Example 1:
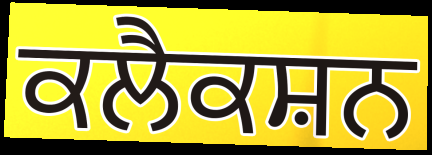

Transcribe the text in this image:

ਕਲੈਕਸ਼ਨ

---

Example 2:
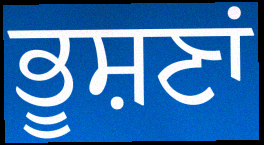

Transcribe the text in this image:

ਭੂਸ਼ਣਾਂ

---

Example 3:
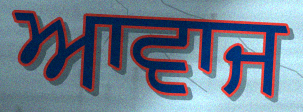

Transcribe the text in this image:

ਆਵਾਜ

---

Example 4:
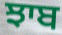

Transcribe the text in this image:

ਝਾਬ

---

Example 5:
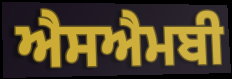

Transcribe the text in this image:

ਐਸਐਮਬੀ